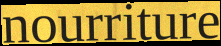
nourriture